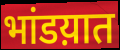
भांडय़ात